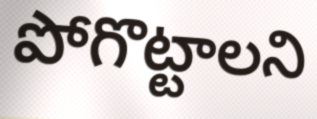
పోగొట్టాలని